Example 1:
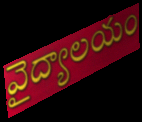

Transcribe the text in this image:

వైద్యాలయం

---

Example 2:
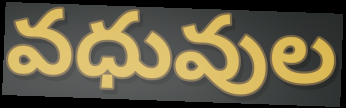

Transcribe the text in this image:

వధువుల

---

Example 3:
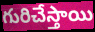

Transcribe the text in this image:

గురిచేస్తాయి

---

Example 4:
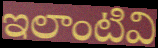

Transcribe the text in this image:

ఇలాంటివి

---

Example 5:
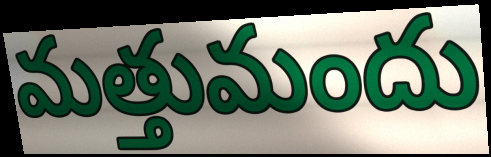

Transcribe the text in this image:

మత్తుమందు